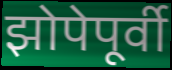
झोपेपूर्वी